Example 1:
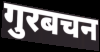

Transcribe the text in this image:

गुरबचन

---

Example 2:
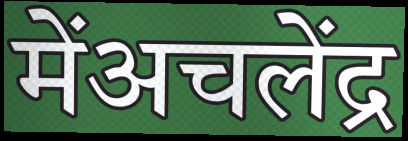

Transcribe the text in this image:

मेंअचलेंद्र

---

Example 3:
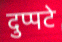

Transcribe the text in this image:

दुप्पटे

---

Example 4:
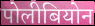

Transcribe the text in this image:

पोलीबियोन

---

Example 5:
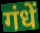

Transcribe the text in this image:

गंधें